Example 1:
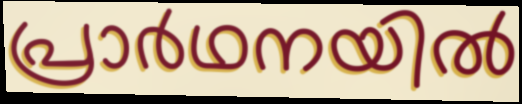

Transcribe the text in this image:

പ്രാർഥനയിൽ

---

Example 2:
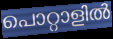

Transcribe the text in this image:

പൊറ്റാളിൽ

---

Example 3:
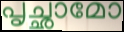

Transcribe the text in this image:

പൃച്ഛാമോ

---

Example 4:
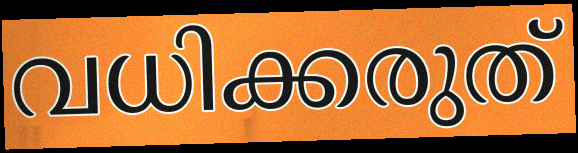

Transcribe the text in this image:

വധിക്കരുത്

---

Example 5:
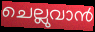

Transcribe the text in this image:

ചെല്ലുവാൻ